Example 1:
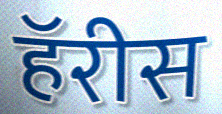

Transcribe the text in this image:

हॅरीस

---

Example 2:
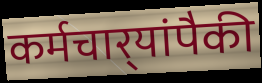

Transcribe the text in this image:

कर्मचार्‍यांपैकी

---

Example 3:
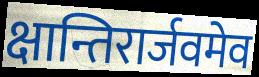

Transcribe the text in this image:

क्षान्तिरार्जवमेव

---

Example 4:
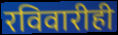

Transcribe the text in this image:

रविवारीही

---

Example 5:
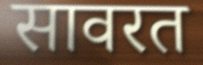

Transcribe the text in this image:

सावरत